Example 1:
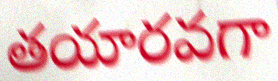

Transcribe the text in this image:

తయారవగా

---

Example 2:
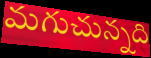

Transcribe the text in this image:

మగుచున్నది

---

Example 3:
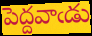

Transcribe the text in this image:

పెద్దవాఁడు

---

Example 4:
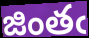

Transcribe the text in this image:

జింతఁ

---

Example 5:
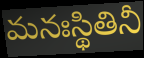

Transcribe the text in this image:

మనఃస్థితినీ